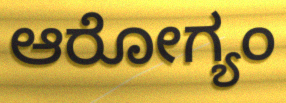
ಆರೋಗ್ಯಂ